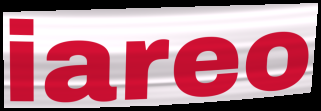
iareo